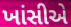
ખાંસીએ